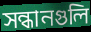
সন্ধানগুলি